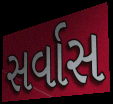
સર્વાસ